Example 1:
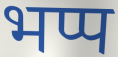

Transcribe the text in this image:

भप्प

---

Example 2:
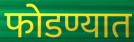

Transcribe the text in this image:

फोडण्यात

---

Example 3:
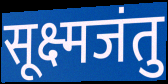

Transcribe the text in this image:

सूक्ष्मजंतु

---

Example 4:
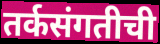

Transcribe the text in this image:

तर्कसंगतीची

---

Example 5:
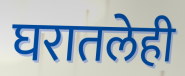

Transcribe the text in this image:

घरातलेही